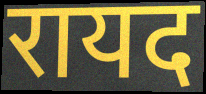
रायद